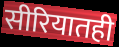
सीरियातही